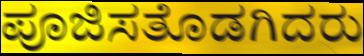
ಪೂಜಿಸತೊಡಗಿದರು